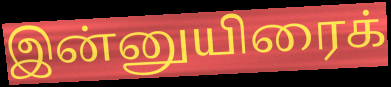
இன்னுயிரைக்